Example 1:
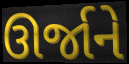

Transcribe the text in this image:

ઊર્જાને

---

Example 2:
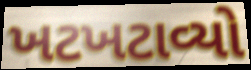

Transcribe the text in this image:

ખટખટાવ્યો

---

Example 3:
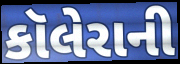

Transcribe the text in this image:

કૉલેરાની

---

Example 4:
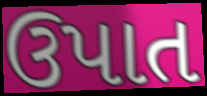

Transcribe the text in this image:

ઉપાત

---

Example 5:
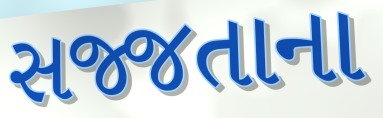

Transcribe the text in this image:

સજ્જતાના